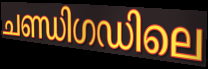
ചണ്ഡിഗഡിലെ